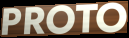
PROTO